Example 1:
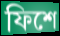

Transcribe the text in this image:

ফিশে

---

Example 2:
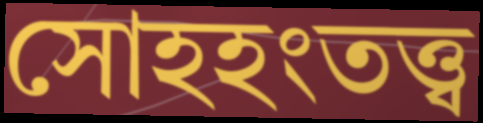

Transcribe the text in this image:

সোহহংতত্ত্ব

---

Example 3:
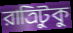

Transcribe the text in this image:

রাত্রিটুকু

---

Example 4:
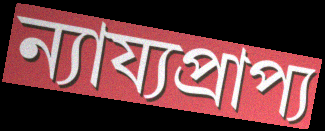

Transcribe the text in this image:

ন্যায্যপ্রাপ্য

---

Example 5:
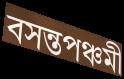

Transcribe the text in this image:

বসন্তপঞ্চমী